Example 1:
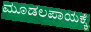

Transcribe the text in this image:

ಮೂಡಲಪಾಯಕ್ಕೆ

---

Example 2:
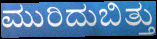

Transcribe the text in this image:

ಮುರಿದುಬಿತ್ತು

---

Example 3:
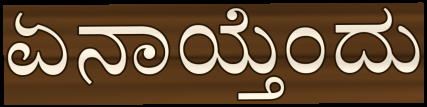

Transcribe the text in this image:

ಏನಾಯ್ತೆಂದು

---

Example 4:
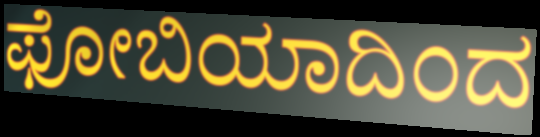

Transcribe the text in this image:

ಫೋಬಿಯಾದಿಂದ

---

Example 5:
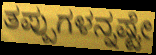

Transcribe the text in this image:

ತಪ್ಪುಗಳನ್ನಷ್ಟೇ